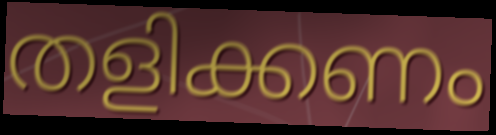
തളിക്കണം